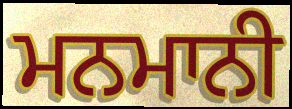
ਮਨਮਾਨੀ